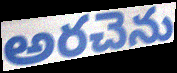
అరచెను